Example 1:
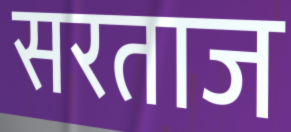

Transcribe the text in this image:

सरताज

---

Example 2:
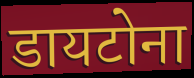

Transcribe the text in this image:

डायटोना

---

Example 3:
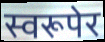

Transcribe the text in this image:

स्वरूपेर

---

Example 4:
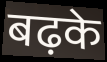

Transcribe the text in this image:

बढ़के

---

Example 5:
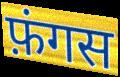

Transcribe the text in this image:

फ़ंगस